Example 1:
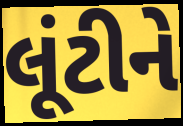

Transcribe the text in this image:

લૂંટીને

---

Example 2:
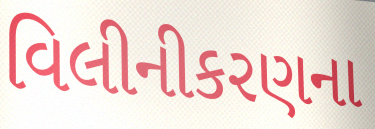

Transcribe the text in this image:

વિલીનીકરણના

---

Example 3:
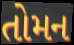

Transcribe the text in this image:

તોમન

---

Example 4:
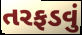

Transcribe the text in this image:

તરફડવું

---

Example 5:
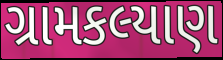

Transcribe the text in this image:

ગ્રામકલ્યાણ